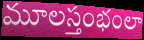
మూలస్తంభంలా